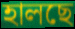
হালছে